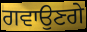
ਗਵਾਉਣਗੇ